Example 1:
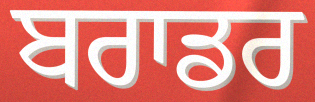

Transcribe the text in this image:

ਬਰਾਡਰ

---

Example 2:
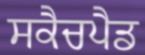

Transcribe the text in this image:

ਸਕੈਚਪੈਡ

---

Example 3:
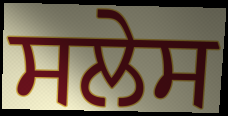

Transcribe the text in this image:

ਸਲੇਸ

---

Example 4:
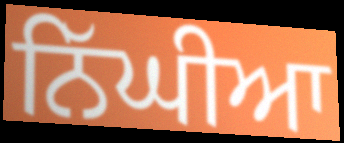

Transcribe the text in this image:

ਨਿੱਘੀਆ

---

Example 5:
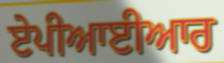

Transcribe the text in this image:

ਏਪੀਆਈਆਰ